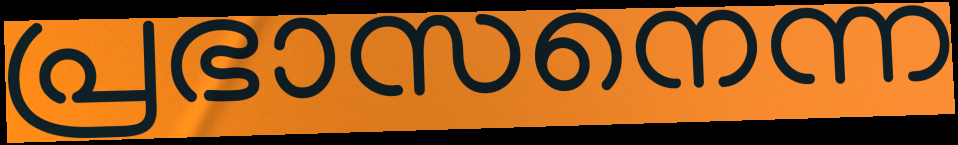
പ്രഭാസനെന്ന